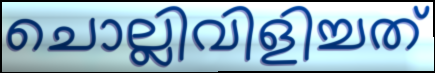
ചൊല്ലിവിളിച്ചത്